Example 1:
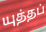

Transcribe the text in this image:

யுத்தப்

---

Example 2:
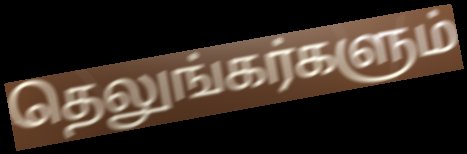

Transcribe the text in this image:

தெலுங்கர்களும்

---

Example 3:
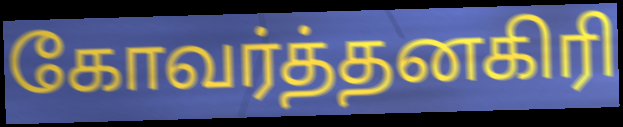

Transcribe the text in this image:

கோவர்த்தனகிரி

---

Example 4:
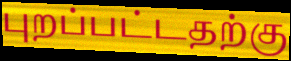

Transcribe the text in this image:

புறப்பட்டதற்கு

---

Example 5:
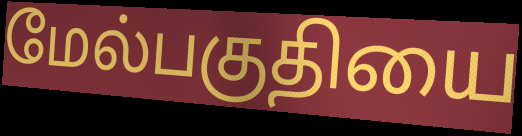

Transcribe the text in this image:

மேல்பகுதியை